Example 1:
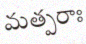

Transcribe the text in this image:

మత్పరాః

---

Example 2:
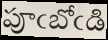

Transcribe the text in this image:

పూఁబోఁడి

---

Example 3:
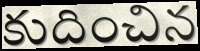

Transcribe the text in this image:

కుదించిన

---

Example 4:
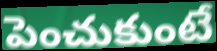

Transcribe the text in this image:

పెంచుకుంటే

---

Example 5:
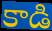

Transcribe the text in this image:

కాడి